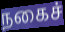
நகைச்